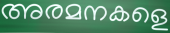
അരമനകളെ